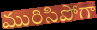
మురిసిపోగా